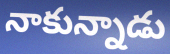
నాకున్నాడు